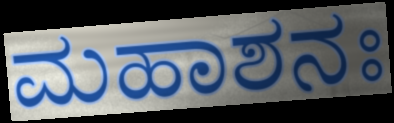
ಮಹಾಶನಃ